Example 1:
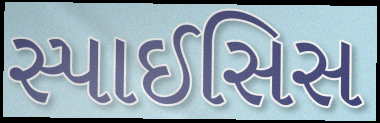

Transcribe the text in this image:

સ્પાઈસિસ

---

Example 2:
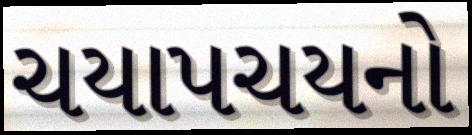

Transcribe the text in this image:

ચયાપચયનો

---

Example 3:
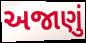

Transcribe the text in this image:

અજાણું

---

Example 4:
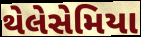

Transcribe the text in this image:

થેલેસેમિયા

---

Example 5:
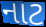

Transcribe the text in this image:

નાટ